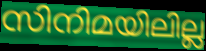
സിനിമയിലില്ല